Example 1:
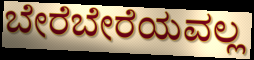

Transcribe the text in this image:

ಬೇರೆಬೇರೆಯವಲ್ಲ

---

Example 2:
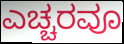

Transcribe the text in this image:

ಎಚ್ಚರವೂ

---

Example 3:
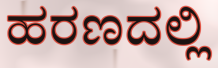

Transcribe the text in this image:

ಹರಣದಲ್ಲಿ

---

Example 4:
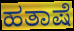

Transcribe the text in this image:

ಹತಾಷೆ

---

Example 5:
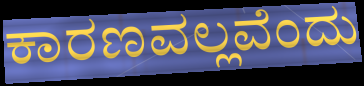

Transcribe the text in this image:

ಕಾರಣವಲ್ಲವೆಂದು